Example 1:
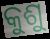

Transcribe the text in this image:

କୁଶୁ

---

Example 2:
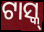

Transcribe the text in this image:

ଟାସ୍କ୍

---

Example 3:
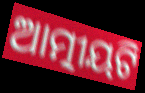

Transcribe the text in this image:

ଆତ୍ମୀୟଟି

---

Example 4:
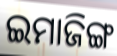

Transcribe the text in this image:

ଇମାଜିଙ୍ଗ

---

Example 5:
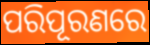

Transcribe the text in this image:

ପରିପୂରଣରେ